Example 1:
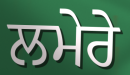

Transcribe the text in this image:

ਲਮੇਰੇ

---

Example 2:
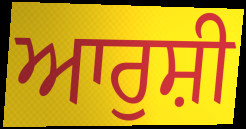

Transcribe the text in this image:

ਆਰੁਸ਼ੀ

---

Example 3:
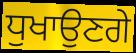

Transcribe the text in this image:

ਧੁਖਾਉਣਗੇ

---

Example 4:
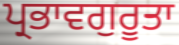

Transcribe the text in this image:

ਪ੍ਰਭਾਵਗੁਰੂਤਾ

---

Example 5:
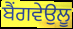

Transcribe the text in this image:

ਬੈਂਗਵੇਉਲੂ